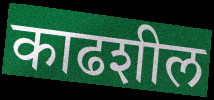
काढशील